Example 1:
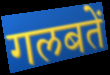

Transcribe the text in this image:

गलबतें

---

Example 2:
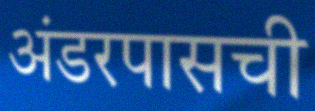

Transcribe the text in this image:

अंडरपासची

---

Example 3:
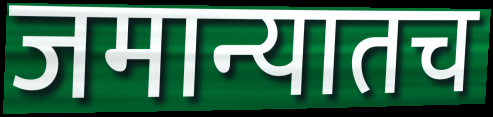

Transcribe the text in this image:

जमान्यातच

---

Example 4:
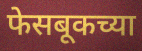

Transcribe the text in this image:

फेसबूकच्या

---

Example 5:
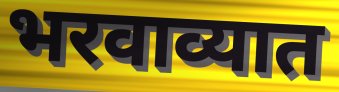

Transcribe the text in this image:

भरवाव्यात